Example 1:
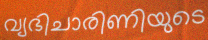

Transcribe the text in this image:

വ്യഭിചാരിണിയുടെ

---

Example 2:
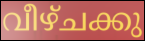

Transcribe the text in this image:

വീഴ്ചക്കു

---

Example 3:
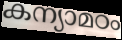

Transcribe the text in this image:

കന്യാമഠം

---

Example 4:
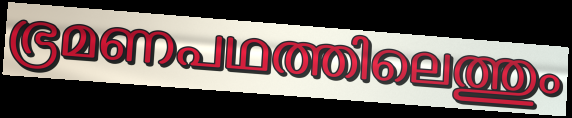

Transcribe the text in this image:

ഭ്രമണപഥത്തിലെത്തും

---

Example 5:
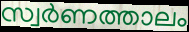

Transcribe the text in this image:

സ്വർണത്താലം